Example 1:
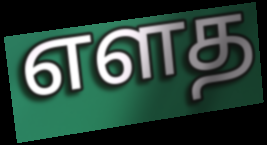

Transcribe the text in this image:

எளத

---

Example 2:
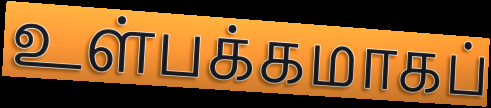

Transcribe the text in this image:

உள்பக்கமாகப்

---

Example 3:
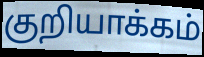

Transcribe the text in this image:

குறியாக்கம்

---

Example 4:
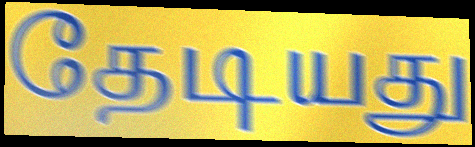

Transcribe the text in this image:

தேடியது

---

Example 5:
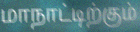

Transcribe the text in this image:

மாநாட்டிற்கும்